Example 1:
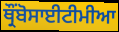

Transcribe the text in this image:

ਥ੍ਰੌਂਬੋਸਾਈਟੀਮੀਆ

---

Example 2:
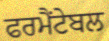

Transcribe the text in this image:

ਫਰਮੈਂਟੇਬਲ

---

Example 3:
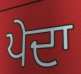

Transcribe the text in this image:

ਪੇਦਾ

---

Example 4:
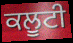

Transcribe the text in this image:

ਕਲੂਟੀ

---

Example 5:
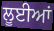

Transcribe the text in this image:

ਲੂਈਆਂ